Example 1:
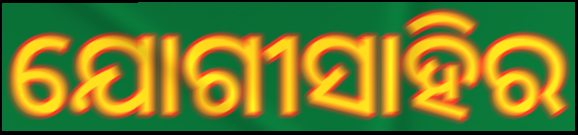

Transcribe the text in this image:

ଯୋଗୀସାହିର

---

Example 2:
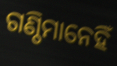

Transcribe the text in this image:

ଗଣ୍ଠିମାନେହିଁ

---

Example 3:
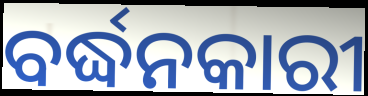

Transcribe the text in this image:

ବର୍ଦ୍ଧନକାରୀ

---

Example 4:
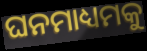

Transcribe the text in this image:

ଘନମାଧ୍ୟମକୁ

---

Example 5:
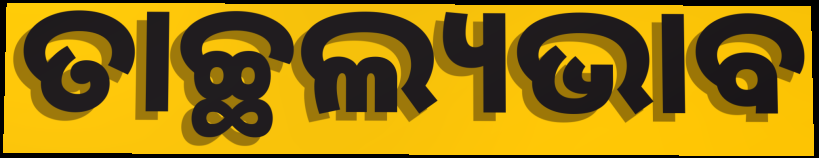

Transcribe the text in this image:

ତାଚ୍ଛଲ୍ୟଭାବ